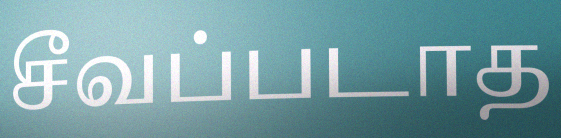
சீவப்படாத